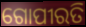
ଗୋପୀରତି